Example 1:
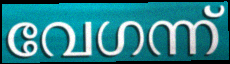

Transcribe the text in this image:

വേഗന്ന്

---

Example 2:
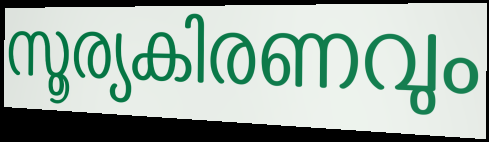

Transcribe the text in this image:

സൂര്യകിരണവും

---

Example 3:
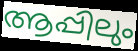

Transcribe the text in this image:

ആപ്പിലും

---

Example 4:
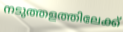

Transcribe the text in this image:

നടുത്തളത്തിലേക്ക്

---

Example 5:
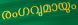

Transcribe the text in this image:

രംഗവുമായും